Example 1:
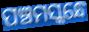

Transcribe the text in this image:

ପଞ୍ଚମସ୍କନ୍ଧେ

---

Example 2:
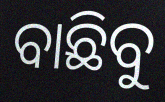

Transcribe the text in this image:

ବାଛିବୁ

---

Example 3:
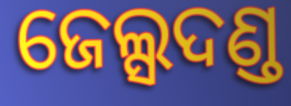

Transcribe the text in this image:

ଜେଲ୍ସଦଣ୍ଡ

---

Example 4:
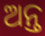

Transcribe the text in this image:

ଅନ୍ତ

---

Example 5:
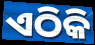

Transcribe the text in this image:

ଏଠିକି